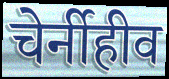
चेर्नीहीव